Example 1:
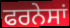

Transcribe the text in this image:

ਫਰਨੇਸਾਂ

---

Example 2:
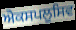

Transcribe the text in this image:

ਐਕਸਪਲੂਸਿਵ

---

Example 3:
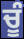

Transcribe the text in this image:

ਚੂੰ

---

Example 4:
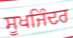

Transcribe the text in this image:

ਸੂਖਜਿੰਦਰ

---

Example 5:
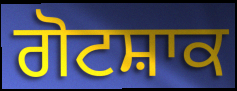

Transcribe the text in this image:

ਗੋਟਸ਼ਾਕ